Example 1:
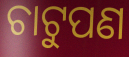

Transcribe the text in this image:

ଚାଟୁପଣ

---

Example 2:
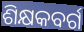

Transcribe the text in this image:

ଶିକ୍ଷକବର୍ଗ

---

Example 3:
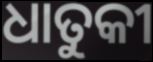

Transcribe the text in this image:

ଧାତୁକୀ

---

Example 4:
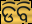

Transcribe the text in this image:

ଡିବି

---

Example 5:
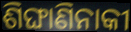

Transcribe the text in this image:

ଶିଙ୍ଘାଣିନାକୀ